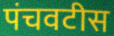
पंचवटीस